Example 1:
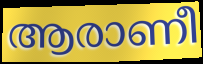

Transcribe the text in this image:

ആരാണീ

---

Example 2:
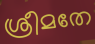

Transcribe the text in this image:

ശ്രീമതേ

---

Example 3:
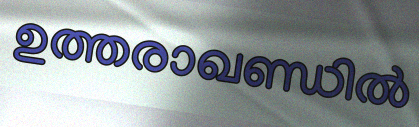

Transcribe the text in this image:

ഉത്തരാഖണ്ഡിൽ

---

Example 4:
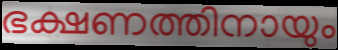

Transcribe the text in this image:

ഭക്ഷണത്തിനായും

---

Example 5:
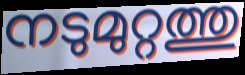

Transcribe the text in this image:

നടുമുറ്റത്തു